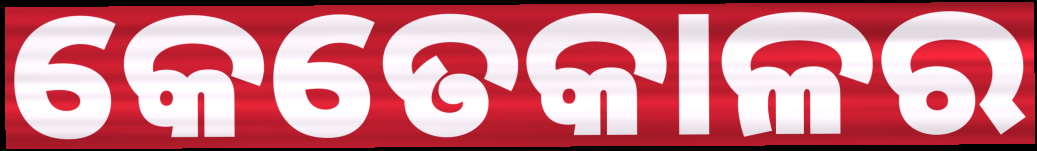
କେତେକାଳର